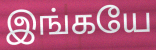
இங்கயே